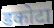
डकोटा